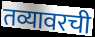
तव्यावरची